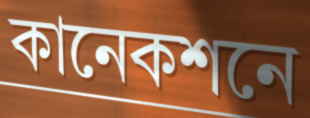
কানেকশনে